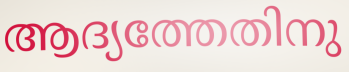
ആദ്യത്തേതിനു